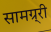
सामग्र्री